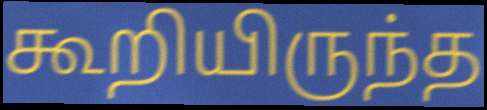
கூறியிருந்த